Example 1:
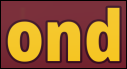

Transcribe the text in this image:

ond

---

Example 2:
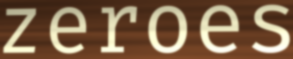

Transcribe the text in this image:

zeroes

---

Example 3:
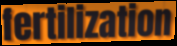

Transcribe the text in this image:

fertilization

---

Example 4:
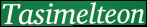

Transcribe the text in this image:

Tasimelteon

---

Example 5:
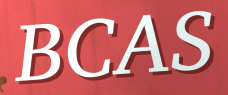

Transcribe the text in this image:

BCAS